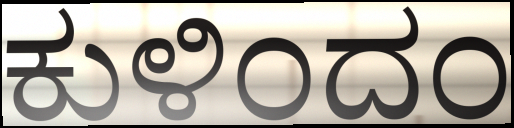
ಕುಳಿಂದಂ